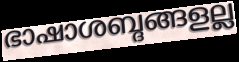
ഭാഷാശബ്ദങ്ങളല്ല